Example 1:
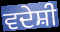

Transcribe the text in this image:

ਵਦੇਸ਼ੀ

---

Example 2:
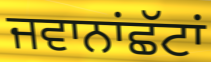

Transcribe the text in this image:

ਜਵਾਨਾਂਛੱਟਾਂ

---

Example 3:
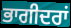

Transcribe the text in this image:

ਭਾਗੀਦਰਾਂ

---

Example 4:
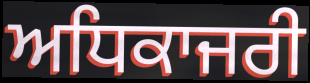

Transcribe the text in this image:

ਅਧਿਕਾਜਰੀ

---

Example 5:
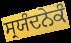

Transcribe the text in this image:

ਸ੍ਰਯੰਦਨੇਕੰ